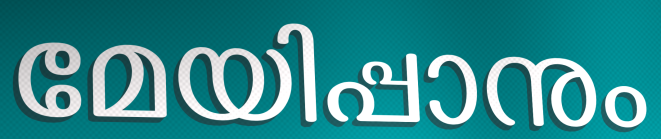
മേയിപ്പാനും